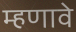
म्हणावे